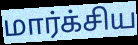
மார்க்சிய